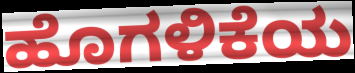
ಹೊಗಳಿಕೆಯ